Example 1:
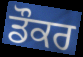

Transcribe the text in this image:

ਡੌਕਰ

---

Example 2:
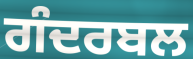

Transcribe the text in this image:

ਗੰਦਰਬਲ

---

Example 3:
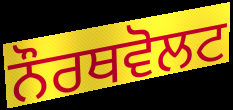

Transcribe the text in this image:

ਨੌਰਥਵੋਲਟ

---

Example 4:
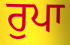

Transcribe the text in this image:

ਰੁਪਾ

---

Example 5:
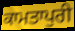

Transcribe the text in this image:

ਕਾਮਤਾਪੁਰੀ